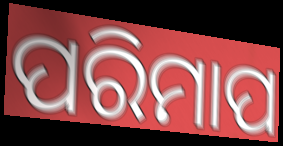
ପରିମାପ